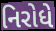
નિરોધે